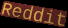
Reddit